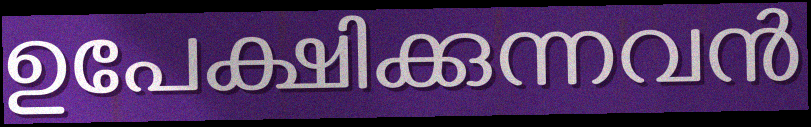
ഉപേക്ഷിക്കുന്നവൻ